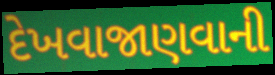
દેખવાજાણવાની